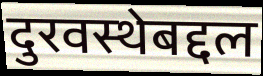
दुरवस्थेबद्दल